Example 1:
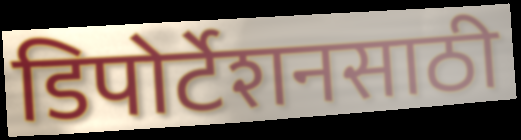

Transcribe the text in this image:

डिपोर्टेशनसाठी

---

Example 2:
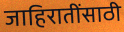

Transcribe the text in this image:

जाहिरातींसाठी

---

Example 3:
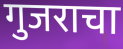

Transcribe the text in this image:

गुजराचा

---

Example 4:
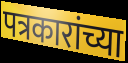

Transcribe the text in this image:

पत्रकारांच्या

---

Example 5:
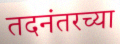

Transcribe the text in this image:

तदनंतरच्या